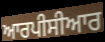
ਆਰਪੀਸੀਆਰ